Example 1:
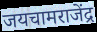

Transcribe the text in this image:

जयचामराजेंद्र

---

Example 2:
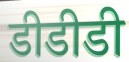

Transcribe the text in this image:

डीडीडी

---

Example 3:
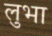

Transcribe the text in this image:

लुभा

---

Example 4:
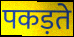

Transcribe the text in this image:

पकड़ते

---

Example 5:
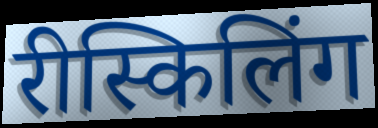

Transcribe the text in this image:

रीस्किलिंग